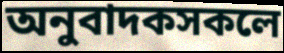
অনুবাদকসকলে